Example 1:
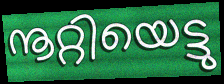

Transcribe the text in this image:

നൂറ്റിയെട്ടു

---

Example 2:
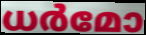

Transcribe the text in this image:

ധർമോ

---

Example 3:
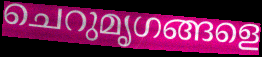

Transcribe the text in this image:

ചെറുമൃഗങ്ങളെ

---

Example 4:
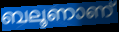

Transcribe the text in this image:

ബലൂണാണ്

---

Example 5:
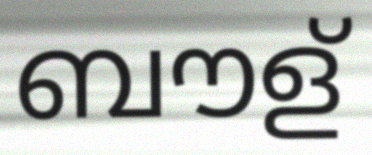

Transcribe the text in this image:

ബൗള്